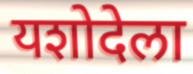
यशोदेला